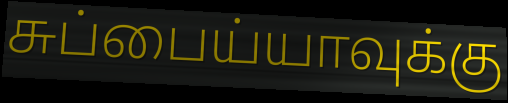
சுப்பைய்யாவுக்கு